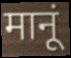
मानूं